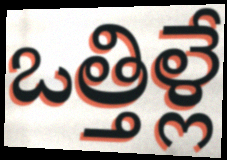
ఒత్తిళ్లే